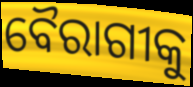
ବୈରାଗୀକୁ